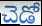
చెడో